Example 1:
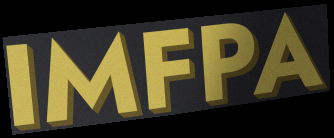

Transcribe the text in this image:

IMFPA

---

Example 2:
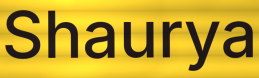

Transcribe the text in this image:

Shaurya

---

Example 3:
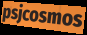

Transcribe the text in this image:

psjcosmos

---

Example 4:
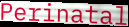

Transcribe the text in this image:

Perinatal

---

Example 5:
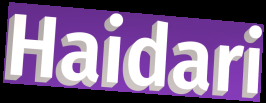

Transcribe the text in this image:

Haidari